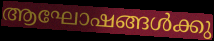
ആഘോഷങ്ങൾക്കു